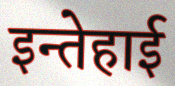
इन्तेहाई